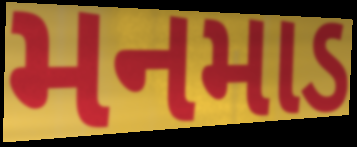
મનમાડ